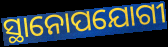
ସ୍ଥାନୋପଯୋଗୀ